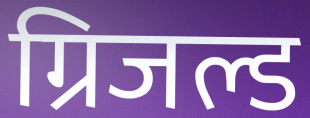
ग्रिजल्ड